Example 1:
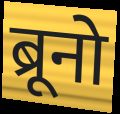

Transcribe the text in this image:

ब्रूनो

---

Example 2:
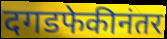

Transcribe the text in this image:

दगडफेकीनंतर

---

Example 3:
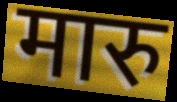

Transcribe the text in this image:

मारु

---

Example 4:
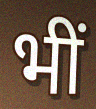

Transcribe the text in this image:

भीं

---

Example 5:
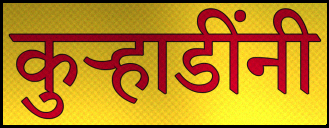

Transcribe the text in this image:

कुर्‍हाडींनी